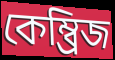
কেম্ব্রিজ